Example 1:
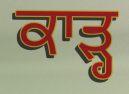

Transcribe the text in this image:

ਕਾੜ੍ਹ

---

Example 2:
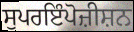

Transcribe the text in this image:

ਸੁਪਰਇੰਪੋਜ਼ੀਸ਼ਨ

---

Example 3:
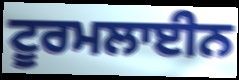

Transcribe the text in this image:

ਟੂਰਮਲਾਈਨ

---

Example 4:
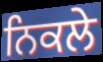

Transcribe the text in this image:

ਨਿਕਲੇ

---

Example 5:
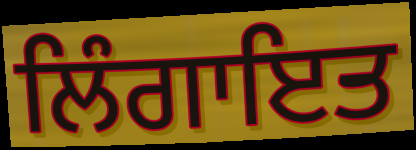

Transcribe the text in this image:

ਲਿੰਗਾਇਤ